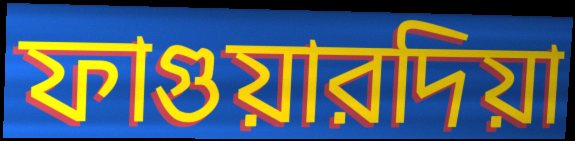
ফাগুয়ারদিয়া